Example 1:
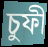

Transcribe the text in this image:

চুফী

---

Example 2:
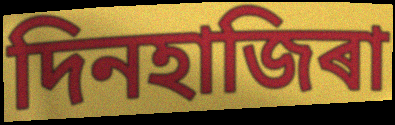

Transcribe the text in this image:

দিনহাজিৰা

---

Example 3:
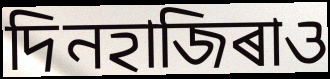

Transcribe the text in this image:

দিনহাজিৰাও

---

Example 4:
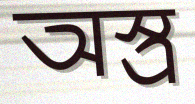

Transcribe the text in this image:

অস্ত্ৰ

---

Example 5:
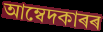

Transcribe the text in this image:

আম্বেদকাৰৰ